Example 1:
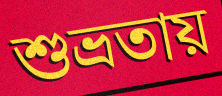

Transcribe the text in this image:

শুভ্রতায়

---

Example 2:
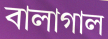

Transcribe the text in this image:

বালাগাল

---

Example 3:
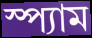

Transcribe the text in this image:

স্প্যাম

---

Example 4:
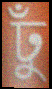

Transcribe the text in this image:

ঢুঁ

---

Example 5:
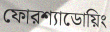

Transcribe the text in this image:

ফোরশ্যাডোয়িং